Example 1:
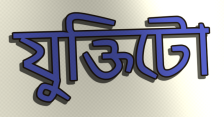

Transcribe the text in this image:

যুক্তিটো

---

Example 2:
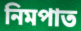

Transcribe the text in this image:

নিমপাত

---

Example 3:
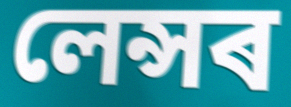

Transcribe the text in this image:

লেন্সৰ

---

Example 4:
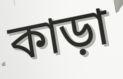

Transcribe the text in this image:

কাড়া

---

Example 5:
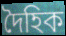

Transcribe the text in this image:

দৈহিক